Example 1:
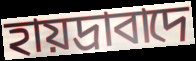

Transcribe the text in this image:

হায়দ্রাবাদে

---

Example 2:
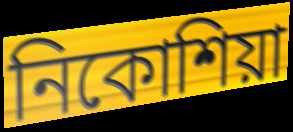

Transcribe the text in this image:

নিকোশিয়া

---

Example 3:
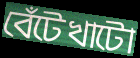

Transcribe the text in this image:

বেঁটেখাটো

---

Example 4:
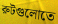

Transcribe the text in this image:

রুটগুলোতে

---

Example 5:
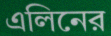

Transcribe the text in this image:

এলিনের